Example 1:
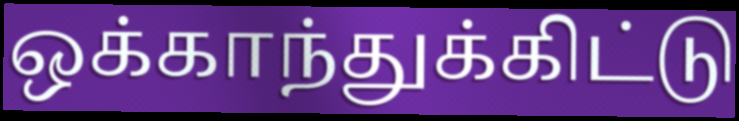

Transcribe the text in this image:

ஒக்காந்துக்கிட்டு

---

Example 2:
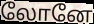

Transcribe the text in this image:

லோனே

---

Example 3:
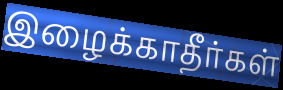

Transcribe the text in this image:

இழைக்காதீர்கள்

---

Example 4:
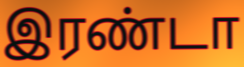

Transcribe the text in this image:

இரண்டா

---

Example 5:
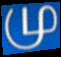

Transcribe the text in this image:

மு